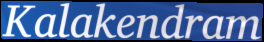
Kalakendram